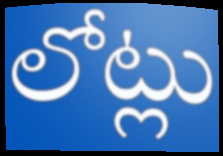
లోట్లు